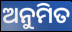
ଅନୁମିତ